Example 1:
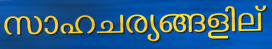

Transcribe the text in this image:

സാഹചര്യങ്ങളില്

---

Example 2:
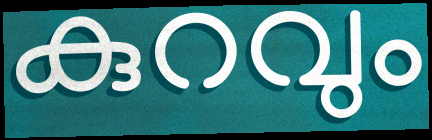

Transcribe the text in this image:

കുറവും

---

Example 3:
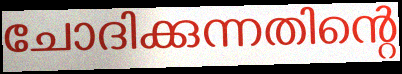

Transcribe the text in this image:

ചോദിക്കുന്നതിന്റെ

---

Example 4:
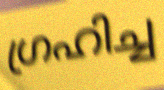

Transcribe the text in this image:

ഗ്രഹിച്ച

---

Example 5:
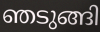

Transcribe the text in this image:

ഞടുങ്ങി